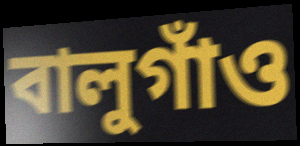
বালুগাঁও